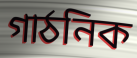
গাঠনিক